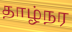
தாழ்நர